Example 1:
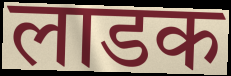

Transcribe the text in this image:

लाडक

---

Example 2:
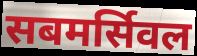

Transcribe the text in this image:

सबमर्सिवल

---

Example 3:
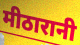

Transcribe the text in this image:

मीठारानी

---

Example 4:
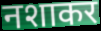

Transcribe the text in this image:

नशाकर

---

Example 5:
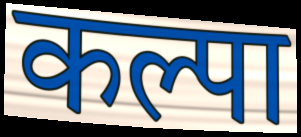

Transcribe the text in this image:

कल्पा